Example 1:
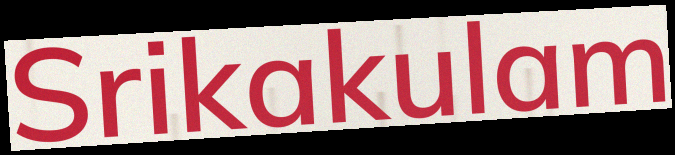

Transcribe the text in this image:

Srikakulam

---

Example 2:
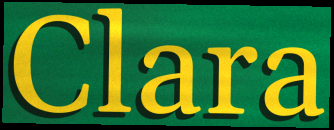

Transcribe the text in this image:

Clara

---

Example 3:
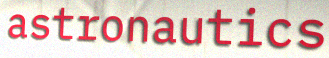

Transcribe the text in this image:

astronautics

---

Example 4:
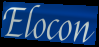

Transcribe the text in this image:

Elocon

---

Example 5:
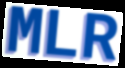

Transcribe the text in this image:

MLR